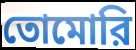
তোমোরি